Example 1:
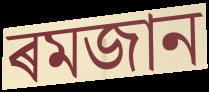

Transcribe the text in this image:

ৰমজান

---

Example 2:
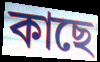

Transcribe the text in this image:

কাছে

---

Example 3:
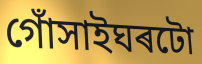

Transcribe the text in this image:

গোঁসাইঘৰটো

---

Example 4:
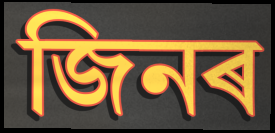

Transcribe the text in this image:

জিনৰ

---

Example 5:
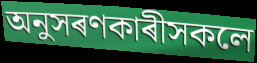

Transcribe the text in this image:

অনুসৰণকাৰীসকলে